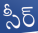
సీర్